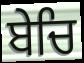
ਬੇਚਿ